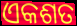
ଏକଶତ